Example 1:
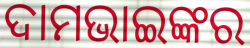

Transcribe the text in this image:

ଦାମଭାଇଙ୍କର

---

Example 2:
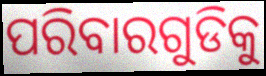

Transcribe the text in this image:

ପରିବାରଗୁଡିକୁ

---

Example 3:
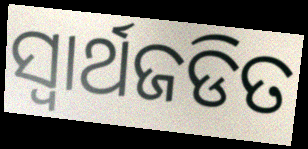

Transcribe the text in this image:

ସ୍ଵାର୍ଥଜଡିତ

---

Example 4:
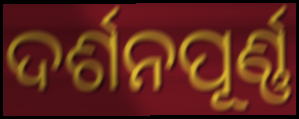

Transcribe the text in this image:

ଦର୍ଶନପୂର୍ଣ୍ଣ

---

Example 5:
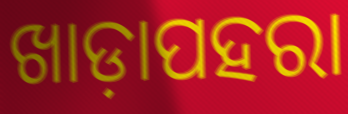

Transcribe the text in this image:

ଖାଡ଼ାପହରା